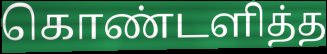
கொண்டளித்த